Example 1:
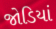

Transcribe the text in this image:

જોડિયાં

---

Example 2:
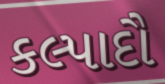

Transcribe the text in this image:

કલ્પાદૌ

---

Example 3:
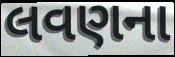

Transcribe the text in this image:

લવણના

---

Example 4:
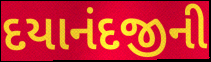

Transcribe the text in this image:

દયાનંદજીની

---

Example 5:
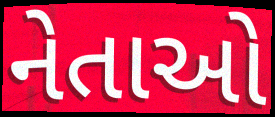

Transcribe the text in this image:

નેતાઓ